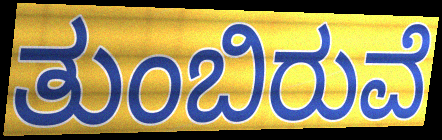
ತುಂಬಿರುವೆ